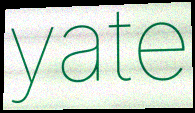
yate